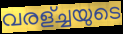
വരള്ച്ചയുടെ